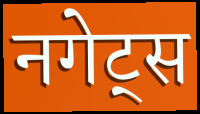
नगेट्स